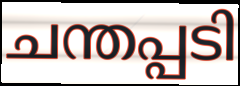
ചന്തപ്പടി